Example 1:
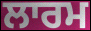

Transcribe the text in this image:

ਲਾਰਮ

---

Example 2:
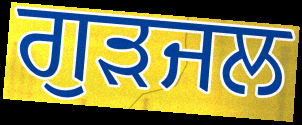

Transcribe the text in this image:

ਗੁੜਜਲ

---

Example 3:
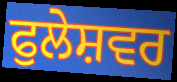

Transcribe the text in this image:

ਫੁਲੇਸ਼ਵਰ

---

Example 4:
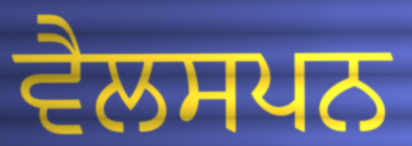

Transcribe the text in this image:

ਵੈਲਸਪਨ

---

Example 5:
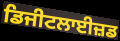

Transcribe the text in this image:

ਡਿਜੀਟਲਾਈਜ਼ਡ